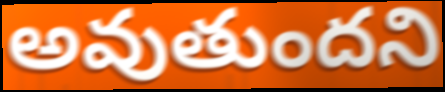
అవుతుందని